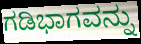
ಗಡಿಭಾಗವನ್ನು